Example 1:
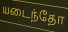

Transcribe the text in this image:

யடைந்தோ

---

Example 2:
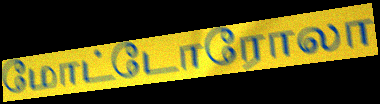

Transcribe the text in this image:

மோட்டோரோலா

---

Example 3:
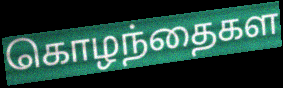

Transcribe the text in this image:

கொழந்தைகள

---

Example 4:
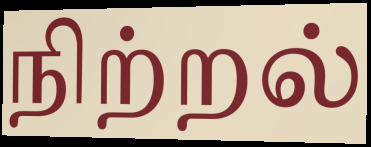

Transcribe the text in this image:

நிற்றல்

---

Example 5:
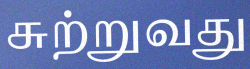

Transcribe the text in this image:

சுற்றுவது